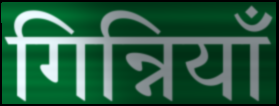
गिन्नियाँ